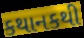
કથાનકથી